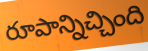
రూపాన్నిచ్చింది